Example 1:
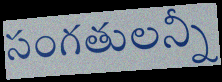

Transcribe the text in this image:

సంగతులన్నీ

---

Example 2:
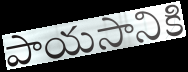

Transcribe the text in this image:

పాయసానికి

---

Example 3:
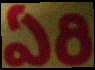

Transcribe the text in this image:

ఏరి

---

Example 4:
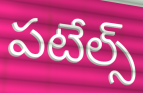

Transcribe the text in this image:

పటేల్స్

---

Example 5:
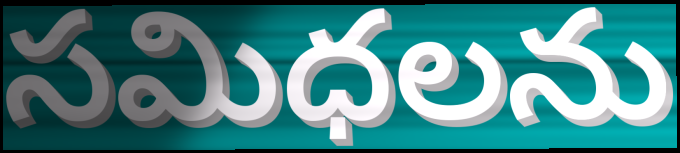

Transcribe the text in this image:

సమిధలను